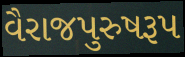
વૈરાજપુરુષરૂપ